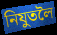
নিযুতলৈ